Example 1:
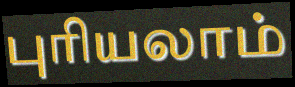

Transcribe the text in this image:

புரியலாம்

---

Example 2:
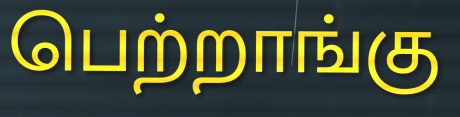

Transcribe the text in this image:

பெற்றாங்கு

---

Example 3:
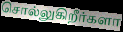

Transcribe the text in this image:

சொல்லுகிறீர்களா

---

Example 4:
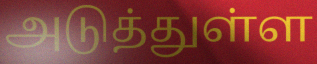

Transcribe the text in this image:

அடுத்துள்ள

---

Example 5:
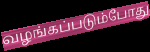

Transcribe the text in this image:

வழங்கப்படும்போது